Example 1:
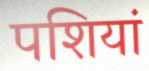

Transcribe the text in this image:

पशियां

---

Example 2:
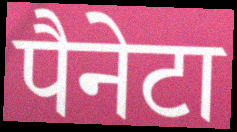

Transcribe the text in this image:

पैनेटा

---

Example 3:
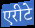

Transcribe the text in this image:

एरीटे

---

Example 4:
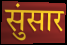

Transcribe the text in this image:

सुंसार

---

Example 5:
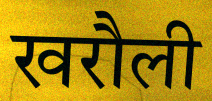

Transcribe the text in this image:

खरौली